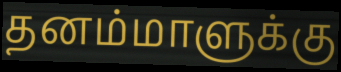
தனம்மாளுக்கு